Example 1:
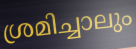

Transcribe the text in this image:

ശ്രമിച്ചാലും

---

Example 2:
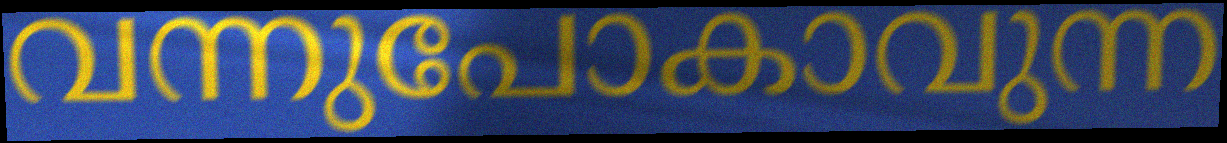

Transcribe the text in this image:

വന്നുപോകാവുന്ന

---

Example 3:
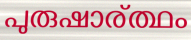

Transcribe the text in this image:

പുരുഷാര്ത്ഥം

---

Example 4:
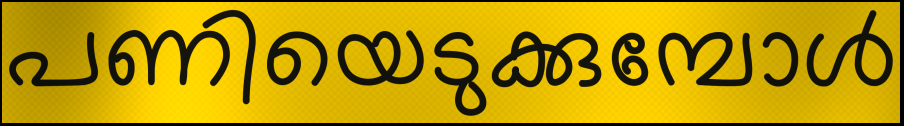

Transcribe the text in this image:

പണിയെടുക്കുമ്പോൾ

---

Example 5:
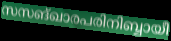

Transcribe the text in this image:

സസങ്ഖാരപരിനിബ്ബായീ